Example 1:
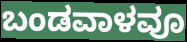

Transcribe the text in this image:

ಬಂಡವಾಳವೂ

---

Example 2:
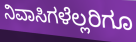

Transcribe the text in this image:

ನಿವಾಸಿಗಳೆಲ್ಲರಿಗೂ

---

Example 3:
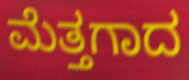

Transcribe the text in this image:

ಮೆತ್ತಗಾದ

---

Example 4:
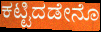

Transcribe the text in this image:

ಕಟ್ಟಿದಡೇನೊ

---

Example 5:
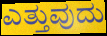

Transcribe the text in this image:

ಎತ್ತುವುದು